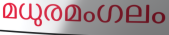
മധുരമംഗലം